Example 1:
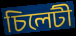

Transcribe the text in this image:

চিলেটী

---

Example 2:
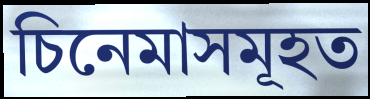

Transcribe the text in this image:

চিনেমাসমূহত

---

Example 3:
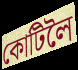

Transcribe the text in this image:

কোটিলৈ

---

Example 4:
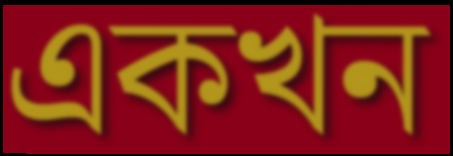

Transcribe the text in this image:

একখন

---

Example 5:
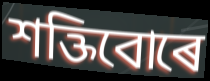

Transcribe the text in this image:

শক্তিবোৰে